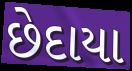
છેદાયા